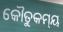
କୌତୁକମ୍‍ୟ